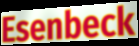
Esenbeck